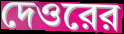
দেওরের